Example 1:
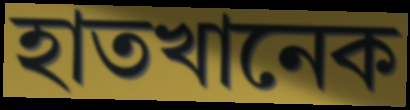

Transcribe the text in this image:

হাতখানেক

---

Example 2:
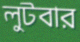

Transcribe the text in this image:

লুটবার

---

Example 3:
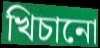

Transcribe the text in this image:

খিচানো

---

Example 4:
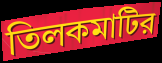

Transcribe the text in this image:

তিলকমাটির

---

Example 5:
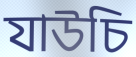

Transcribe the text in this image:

যাউচি